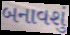
બનાવશું